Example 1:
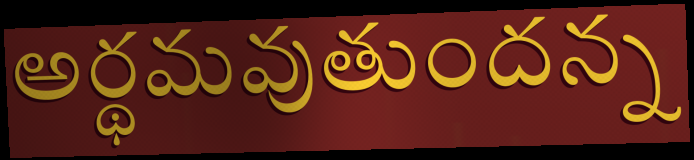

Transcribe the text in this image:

అర్థమవుతుందన్న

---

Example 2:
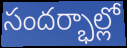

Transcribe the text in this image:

సందర్భాల్లో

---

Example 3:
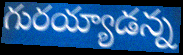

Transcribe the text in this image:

గురయ్యాడన్న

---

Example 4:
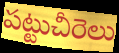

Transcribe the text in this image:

పట్టుచీరెలు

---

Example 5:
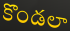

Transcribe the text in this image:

కొండలా